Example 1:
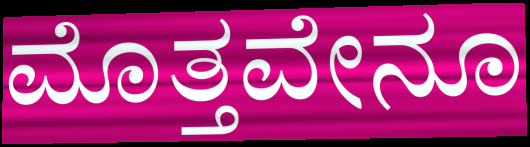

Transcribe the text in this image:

ಮೊತ್ತವೇನೂ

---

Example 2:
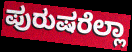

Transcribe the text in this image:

ಪುರುಷರೆಲ್ಲಾ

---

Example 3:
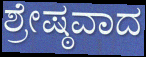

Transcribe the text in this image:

ಶ್ರೇಷ್ಠವಾದ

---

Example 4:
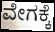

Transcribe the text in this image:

ವೇಗಕ್ಕೆ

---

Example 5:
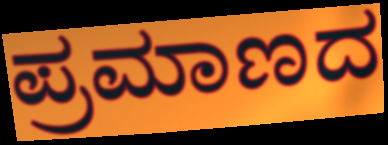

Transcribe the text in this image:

ಪ್ರಮಾಣದ